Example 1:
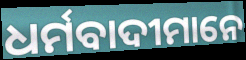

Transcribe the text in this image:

ଧର୍ମବାଦୀମାନେ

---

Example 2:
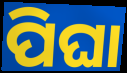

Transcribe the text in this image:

ପିଘା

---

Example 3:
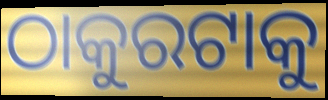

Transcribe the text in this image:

ଠାକୁରଟାକୁ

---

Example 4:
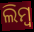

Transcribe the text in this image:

ଲିମ୍ବ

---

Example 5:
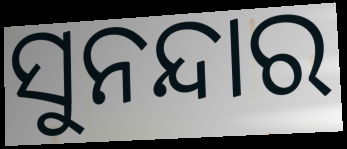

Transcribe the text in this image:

ସୁନନ୍ଦାର